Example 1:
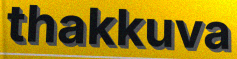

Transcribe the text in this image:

thakkuva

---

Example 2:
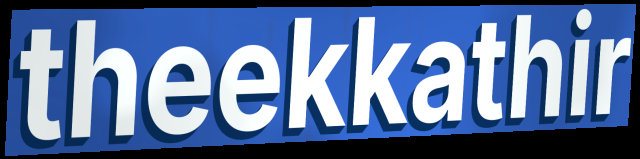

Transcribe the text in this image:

theekkathir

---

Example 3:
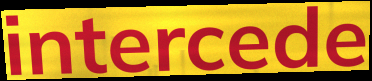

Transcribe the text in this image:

intercede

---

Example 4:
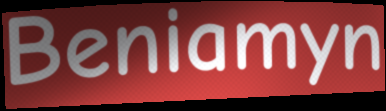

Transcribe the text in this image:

Beniamyn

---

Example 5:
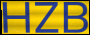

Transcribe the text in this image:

HZB